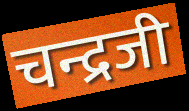
चन्द्रजी